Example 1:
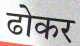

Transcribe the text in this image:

ढोकर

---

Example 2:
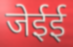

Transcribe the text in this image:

जेईई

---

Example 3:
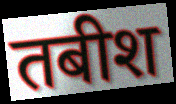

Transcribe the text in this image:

तबीश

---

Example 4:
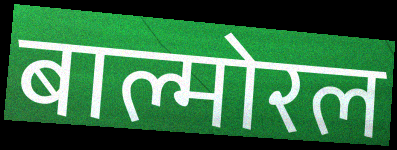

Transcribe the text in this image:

बाल्‍मोरल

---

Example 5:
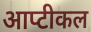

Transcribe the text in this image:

आप्टीकल